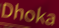
Dhoka